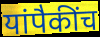
यांपैकींच